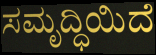
ಸಮೃದ್ಧಿಯಿದೆ